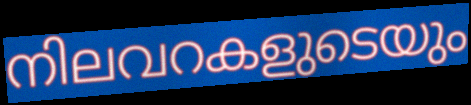
നിലവറകളുടെയും